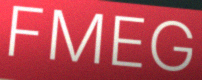
FMEG